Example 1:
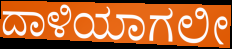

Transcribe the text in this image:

ದಾಳಿಯಾಗಲೀ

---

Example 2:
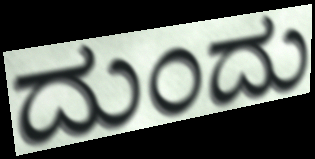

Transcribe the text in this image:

ದುಂದು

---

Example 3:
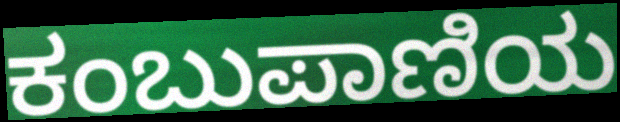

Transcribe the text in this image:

ಕಂಬುಪಾಣಿಯ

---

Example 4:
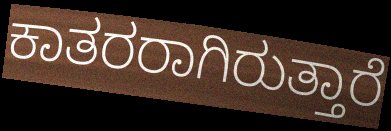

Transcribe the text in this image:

ಕಾತರರಾಗಿರುತ್ತಾರೆ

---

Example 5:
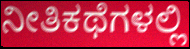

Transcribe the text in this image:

ನೀತಿಕಥೆಗಳಲ್ಲಿ